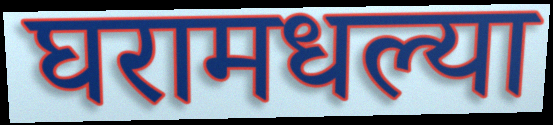
घरामधल्या